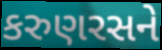
કરુણરસને